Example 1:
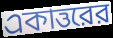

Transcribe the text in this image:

একাত্তরের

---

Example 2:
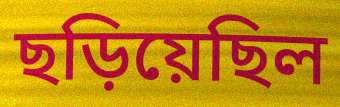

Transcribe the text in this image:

ছড়িয়েছিল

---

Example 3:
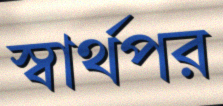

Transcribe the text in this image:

স্বার্থপর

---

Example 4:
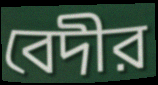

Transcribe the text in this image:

বেদীর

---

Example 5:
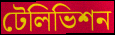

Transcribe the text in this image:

টেলিভিশন